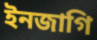
ইনজাগি